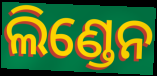
ଲିଣ୍ଡେନ